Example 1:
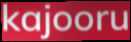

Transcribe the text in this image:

kajooru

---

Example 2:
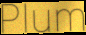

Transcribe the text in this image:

Plum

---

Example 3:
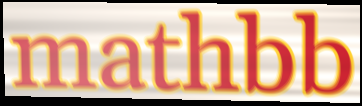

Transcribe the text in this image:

mathbb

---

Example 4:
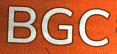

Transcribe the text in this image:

BGC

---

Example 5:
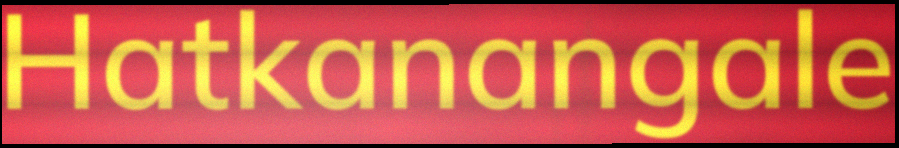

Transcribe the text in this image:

Hatkanangale